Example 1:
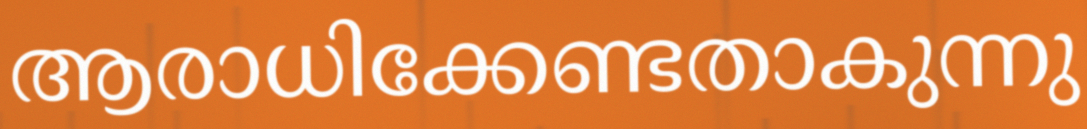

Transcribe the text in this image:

ആരാധിക്കേണ്ടതാകുന്നു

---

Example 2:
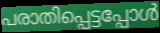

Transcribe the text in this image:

പരാതിപ്പെട്ടപ്പോൾ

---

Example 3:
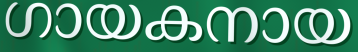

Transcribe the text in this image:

ഗായകനായ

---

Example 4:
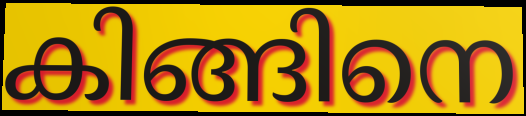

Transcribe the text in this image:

കിങ്ങിനെ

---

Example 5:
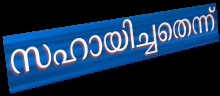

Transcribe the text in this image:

സഹായിച്ചതെന്ന്